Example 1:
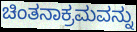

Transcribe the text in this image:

ಚಿಂತನಾಕ್ರಮವನ್ನು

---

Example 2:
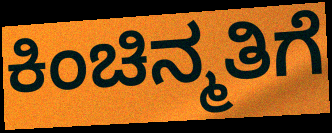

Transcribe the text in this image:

ಕಿಂಚಿನ್ಮತಿಗೆ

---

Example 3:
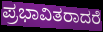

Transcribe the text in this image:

ಪ್ರಭಾವಿತರಾದರೆ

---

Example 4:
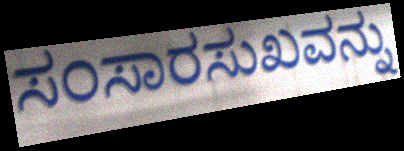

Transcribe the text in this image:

ಸಂಸಾರಸುಖವನ್ನು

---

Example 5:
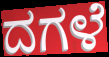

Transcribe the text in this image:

ದಗಳೆ